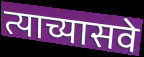
त्याच्यासवे